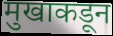
मुखाकडून